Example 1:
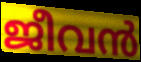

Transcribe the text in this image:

ജീവൻ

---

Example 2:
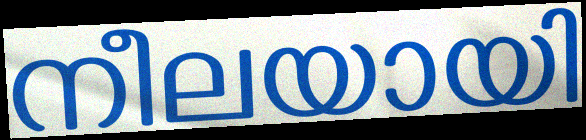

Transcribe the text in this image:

നീലയായി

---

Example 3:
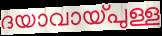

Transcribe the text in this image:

ദയാവായ്പുള്ള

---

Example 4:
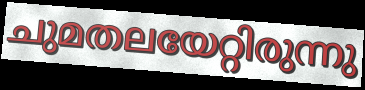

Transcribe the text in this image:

ചുമതലയേറ്റിരുന്നു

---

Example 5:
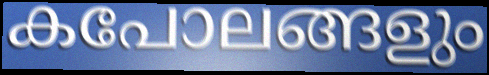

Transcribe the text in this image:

കപോലങ്ങളും